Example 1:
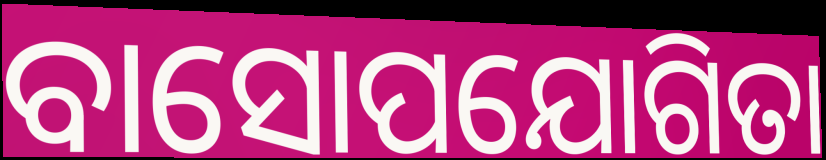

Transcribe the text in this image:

ବାସୋପଯୋଗିତା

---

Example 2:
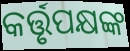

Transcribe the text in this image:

କର୍ତ୍ତୃପକ୍ଷଙ୍କ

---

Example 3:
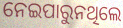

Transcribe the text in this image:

ନେଇପାରୁନଥିଲେ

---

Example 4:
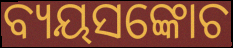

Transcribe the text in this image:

ବ୍ୟୟସଙ୍କୋଚ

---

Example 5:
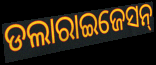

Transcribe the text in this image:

ଡଲାରାଇଜେସନ୍